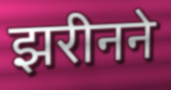
झरीनने